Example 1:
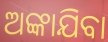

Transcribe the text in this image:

ଅଙ୍କାଯିବା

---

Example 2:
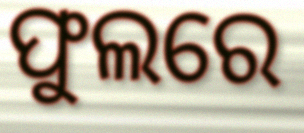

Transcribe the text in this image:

ଫୁଲରେ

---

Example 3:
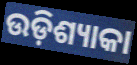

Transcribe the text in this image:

ଉଡ଼ିଶ୍ୟାକା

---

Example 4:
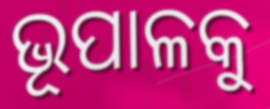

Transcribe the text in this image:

ଭୂପାଳକୁ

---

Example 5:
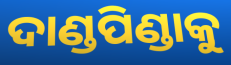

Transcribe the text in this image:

ଦାଣ୍ଡପିଣ୍ଡାକୁ